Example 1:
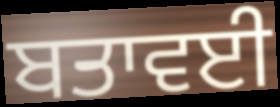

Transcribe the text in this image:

ਬਤਾਵਈ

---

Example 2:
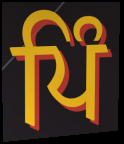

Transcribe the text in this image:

ਪਿੰ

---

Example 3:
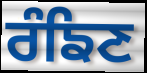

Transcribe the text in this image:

ਰੰਙਿਣ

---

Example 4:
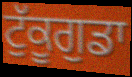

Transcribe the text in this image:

ਟੁੱਕੂਗੁਡਾ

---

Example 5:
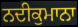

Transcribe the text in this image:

ਨਦੀਕੁਮਾਨਾ